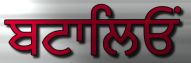
ਬਟਾਲਿਓਂ